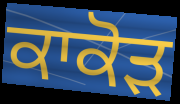
ਕਾਕੋੜ